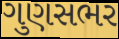
ગુણસભર